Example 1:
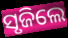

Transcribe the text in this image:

ସୃଜିଲେ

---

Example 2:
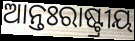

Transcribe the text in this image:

ଆନ୍ତଃରାଷ୍ଟ୍ରୀୟ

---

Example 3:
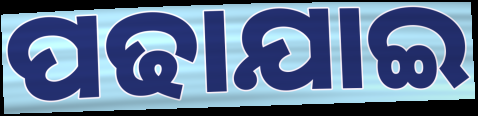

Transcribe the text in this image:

ପଢାଯାଇ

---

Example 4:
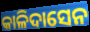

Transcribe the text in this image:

କାଳିଦାସେନ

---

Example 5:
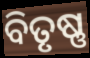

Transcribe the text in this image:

ବିତୃଷ୍ଣ